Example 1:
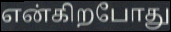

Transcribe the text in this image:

என்கிறபோது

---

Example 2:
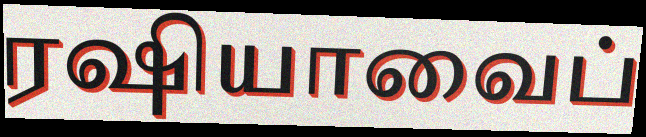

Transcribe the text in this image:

ரஷியாவைப்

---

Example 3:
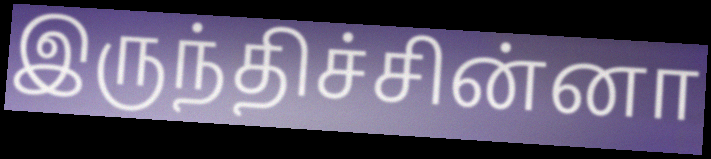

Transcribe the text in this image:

இருந்திச்சின்னா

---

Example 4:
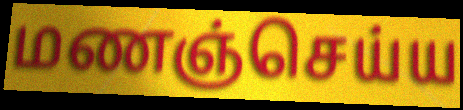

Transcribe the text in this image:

மணஞ்செய்ய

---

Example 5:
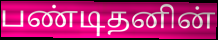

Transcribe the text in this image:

பண்டிதனின்